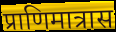
प्राणिमात्रास